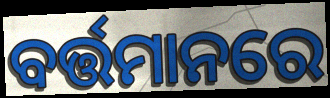
ବର୍ତ୍ତମାନରେ